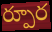
ర్పూర